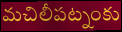
మచిలీపట్నంకు